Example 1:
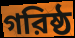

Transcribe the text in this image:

গরিষ্ঠ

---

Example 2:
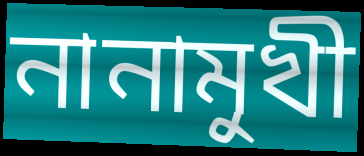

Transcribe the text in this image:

নানামুখী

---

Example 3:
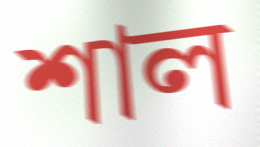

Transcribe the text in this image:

শাল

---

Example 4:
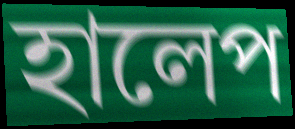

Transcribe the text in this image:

হালেপ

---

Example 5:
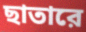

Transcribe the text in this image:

ছাতারে